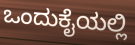
ಒಂದುಕೈಯಲ್ಲಿ